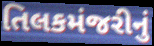
તિલકમંજરીનું